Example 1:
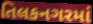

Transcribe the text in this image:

તિલકનગરમાં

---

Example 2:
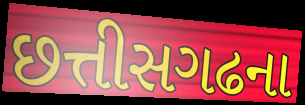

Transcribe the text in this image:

છત્તીસગઢના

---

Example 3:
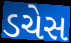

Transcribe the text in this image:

ડચેસ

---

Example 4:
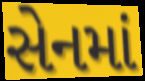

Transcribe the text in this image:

સેનમાં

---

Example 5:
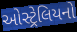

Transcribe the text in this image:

ઓસ્ટ્રેલિયનો